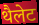
थैलेट